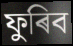
ফুৰিব